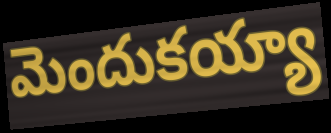
మెందుకయ్యా